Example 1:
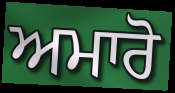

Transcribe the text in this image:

ਅਮਾਰੋ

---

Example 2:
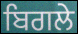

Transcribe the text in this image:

ਬਿਗਲੇ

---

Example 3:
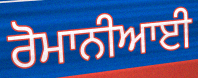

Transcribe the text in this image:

ਰੋਮਾਨੀਆਈ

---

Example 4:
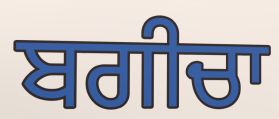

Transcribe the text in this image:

ਬਗੀਚਾ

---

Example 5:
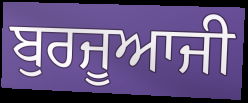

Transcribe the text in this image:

ਬੁਰਜੂਆਜੀ